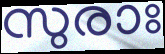
സുരാഃ